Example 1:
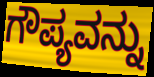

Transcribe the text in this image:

ಗೌಪ್ಯವನ್ನು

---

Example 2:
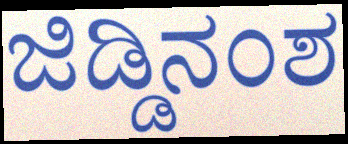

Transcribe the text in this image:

ಜಿಡ್ಡಿನಂಶ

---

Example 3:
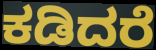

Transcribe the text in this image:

ಕಡಿದರೆ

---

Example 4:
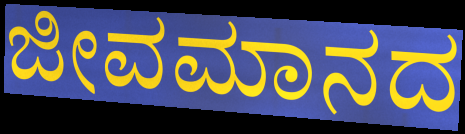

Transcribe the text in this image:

ಜೀವಮಾನದ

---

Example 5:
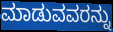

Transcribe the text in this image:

ಮಾಡುವವರನ್ನು